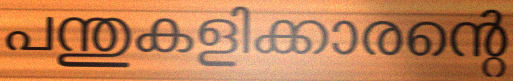
പന്തുകളിക്കാരന്റെ